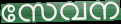
സേവന